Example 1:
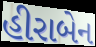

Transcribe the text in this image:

હીરાબેન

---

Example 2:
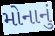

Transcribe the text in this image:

મોનાનું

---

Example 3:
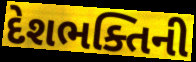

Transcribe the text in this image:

દેશભક્તિની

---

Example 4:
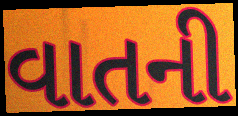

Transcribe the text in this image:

વાતની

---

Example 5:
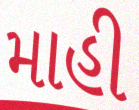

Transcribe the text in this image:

માહી